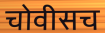
चोवीसच